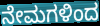
ನೇಮಗಳಿಂದ